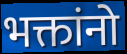
भक्तांनो